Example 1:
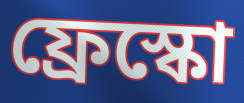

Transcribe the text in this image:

ফ্রেস্কো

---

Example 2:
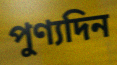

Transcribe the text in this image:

পুণ্যদিন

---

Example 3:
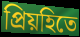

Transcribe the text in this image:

প্রিয়হিতে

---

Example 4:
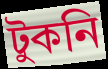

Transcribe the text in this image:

টুকনি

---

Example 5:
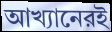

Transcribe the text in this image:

আখ্যানেরই